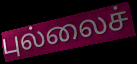
புல்லைச்